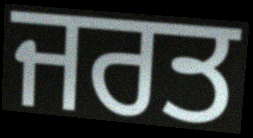
ਜਰਤ